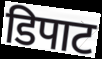
डिपाट